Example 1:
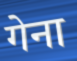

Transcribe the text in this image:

गेना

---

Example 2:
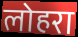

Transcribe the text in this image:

लोहरा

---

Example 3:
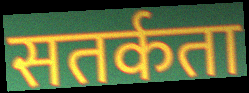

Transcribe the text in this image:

सतर्कता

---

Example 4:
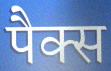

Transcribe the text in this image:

पैक्स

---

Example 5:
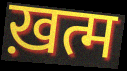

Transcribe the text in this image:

ख़त्म